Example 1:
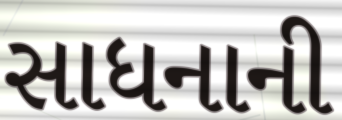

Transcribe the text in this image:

સાધનાની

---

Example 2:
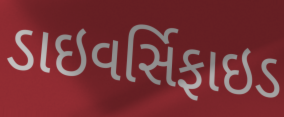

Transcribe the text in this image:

ડાઇવર્સિફાઇડ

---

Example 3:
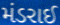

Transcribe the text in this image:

મંડરાઈ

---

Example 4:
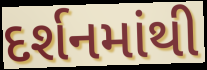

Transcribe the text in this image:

દર્શનમાંથી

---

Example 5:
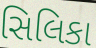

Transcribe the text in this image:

સિલિકા